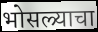
भोसल्याचा